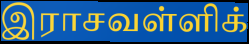
இராசவள்ளிக்